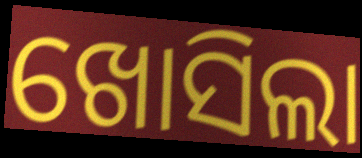
ଖୋସିଲା